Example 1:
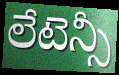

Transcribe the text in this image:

లేటెన్సీ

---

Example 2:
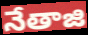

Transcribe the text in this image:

నేతాజి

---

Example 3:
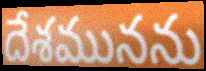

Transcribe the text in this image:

దేశమునను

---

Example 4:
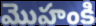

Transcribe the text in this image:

మొహంకి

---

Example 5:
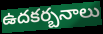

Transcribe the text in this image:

ఉదకర్బనాలు